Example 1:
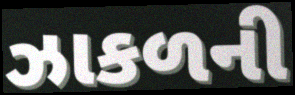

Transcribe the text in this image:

ઝાકળની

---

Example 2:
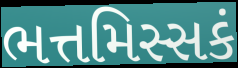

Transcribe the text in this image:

ભત્તમિસ્સકં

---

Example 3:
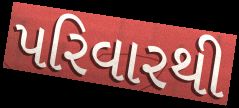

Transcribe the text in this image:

પરિવારથી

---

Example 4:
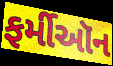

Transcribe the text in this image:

ફર્મીઑન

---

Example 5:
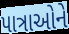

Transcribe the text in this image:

પાત્રાઓને